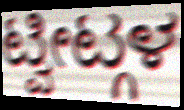
ಟ್ವೀಟ್ಗಳ